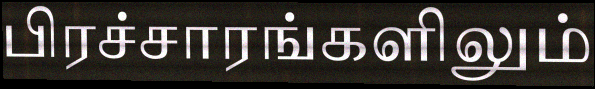
பிரச்சாரங்களிலும்